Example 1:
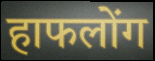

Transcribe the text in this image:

हाफलोंग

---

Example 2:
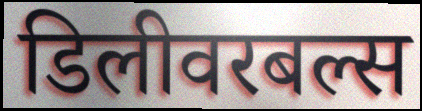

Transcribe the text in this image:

डिलीवरबल्स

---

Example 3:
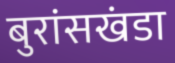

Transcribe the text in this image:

बुरांसखंडा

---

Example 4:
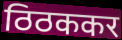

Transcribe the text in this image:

ठिठककर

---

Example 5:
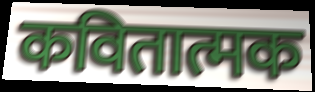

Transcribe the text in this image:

कवितात्मक